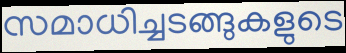
സമാധിച്ചടങ്ങുകളുടെ